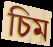
চিম